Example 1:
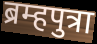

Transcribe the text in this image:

ब्रम्हपुत्रा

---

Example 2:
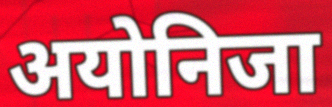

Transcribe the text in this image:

अयोनिजा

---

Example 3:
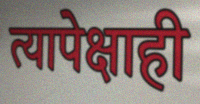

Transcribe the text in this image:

त्यापेक्षाही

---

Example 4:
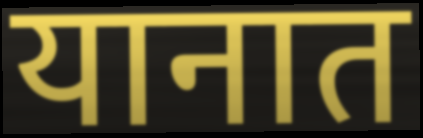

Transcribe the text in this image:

यानात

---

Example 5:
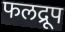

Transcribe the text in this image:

फलद्रूप